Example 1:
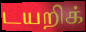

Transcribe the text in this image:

டயறிக்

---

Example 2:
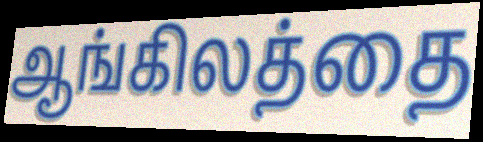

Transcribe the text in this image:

ஆங்கிலத்தை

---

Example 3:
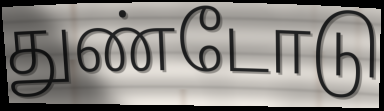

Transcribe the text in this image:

துண்டோடு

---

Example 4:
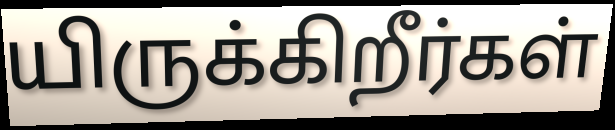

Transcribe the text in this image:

யிருக்கிறீர்கள்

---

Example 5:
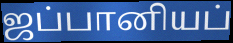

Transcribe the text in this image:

ஜப்பானியப்